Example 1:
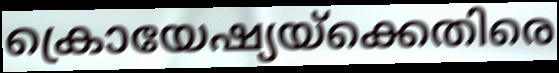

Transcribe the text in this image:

ക്രൊയേഷ്യയ്ക്കെതിരെ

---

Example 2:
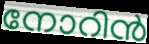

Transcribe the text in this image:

നോറിൻ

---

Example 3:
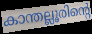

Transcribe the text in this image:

കാന്തല്ലൂരിന്റെ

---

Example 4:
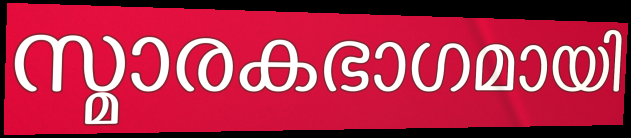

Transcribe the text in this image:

സ്മാരകഭാഗമായി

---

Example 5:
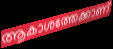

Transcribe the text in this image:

ആകാശത്തേക്കാണ്